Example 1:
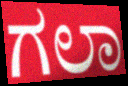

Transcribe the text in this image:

ಗಲಾ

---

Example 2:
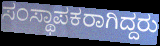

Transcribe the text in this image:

ಸಂಸ್ಥಾಪಕರಾಗಿದ್ದರು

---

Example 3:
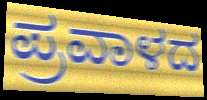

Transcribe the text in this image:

ಪ್ರವಾಳದ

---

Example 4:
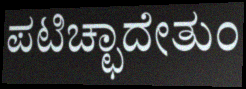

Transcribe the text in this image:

ಪಟಿಚ್ಛಾದೇತುಂ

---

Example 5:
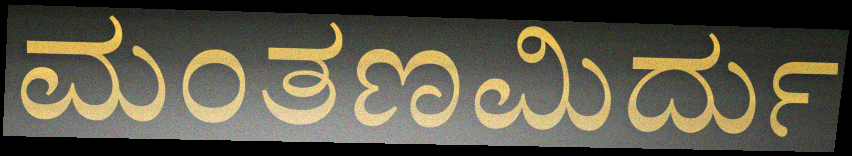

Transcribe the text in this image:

ಮಂತಣಮಿರ್ದು